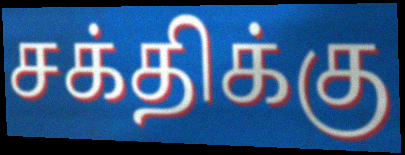
சக்திக்கு